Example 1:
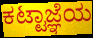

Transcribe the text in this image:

ಕಟ್ಟಾಜ್ಞೆಯ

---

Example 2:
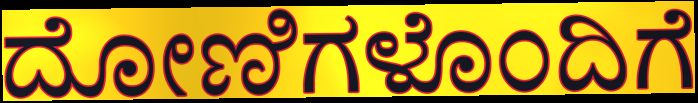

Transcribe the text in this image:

ದೋಣಿಗಳೊಂದಿಗೆ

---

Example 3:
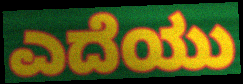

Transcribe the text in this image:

ಎದೆಯು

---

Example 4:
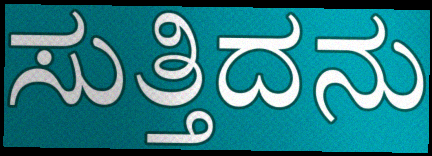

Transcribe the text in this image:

ಸುತ್ತಿದನು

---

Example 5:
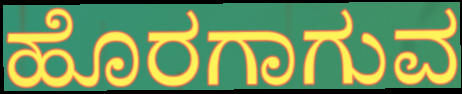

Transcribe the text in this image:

ಹೊರಗಾಗುವ